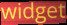
widget